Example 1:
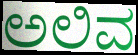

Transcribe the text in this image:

ಅಲಿವ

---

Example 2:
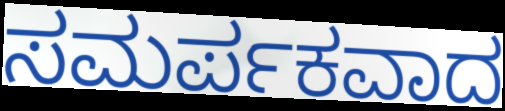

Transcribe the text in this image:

ಸಮರ್ಪಕವಾದ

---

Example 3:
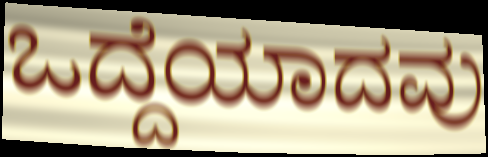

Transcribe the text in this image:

ಒದ್ದೆಯಾದವು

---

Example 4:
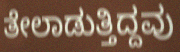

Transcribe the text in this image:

ತೇಲಾಡುತ್ತಿದ್ದವು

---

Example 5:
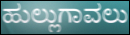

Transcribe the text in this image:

ಹುಲ್ಲುಗಾವಲು